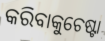
କରିବାକୁଚେଷ୍ଟା